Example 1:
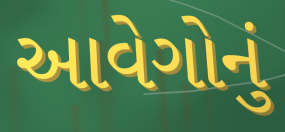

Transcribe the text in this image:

આવેગોનું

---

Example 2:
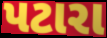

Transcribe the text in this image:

પટારા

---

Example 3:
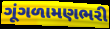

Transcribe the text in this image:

ગૂંગળામણભરી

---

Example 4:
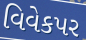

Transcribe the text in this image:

વિવેકપર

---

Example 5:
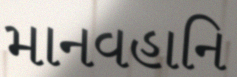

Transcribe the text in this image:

માનવહાનિ